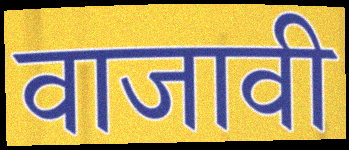
वाजावी